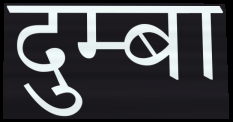
दुम्बा